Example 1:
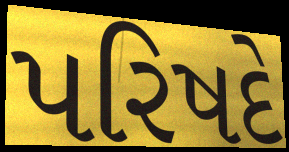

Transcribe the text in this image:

પરિષદે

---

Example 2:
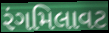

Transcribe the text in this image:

રંગમિલાવટ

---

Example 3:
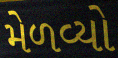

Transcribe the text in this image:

મેળવ્યો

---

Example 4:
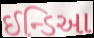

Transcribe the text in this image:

ઈન્ડિઆ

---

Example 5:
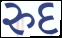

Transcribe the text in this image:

રુદ